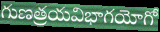
గుణత్రయవిభాగయోగో